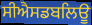
ਸੀਐਸਡਬਲਿਊ